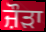
ਜ਼ੌੜਾ